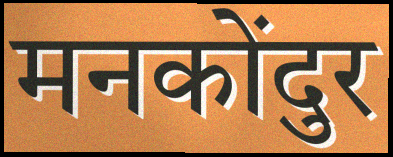
मनकोंदुर